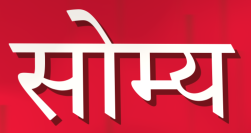
सोम्य